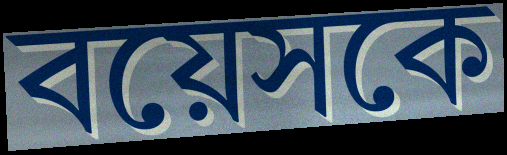
বয়েসকে